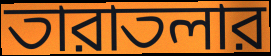
তারাতলার